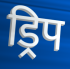
ड्रिप